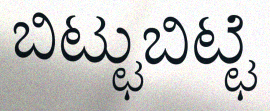
ಬಿಟ್ಟುಬಿಟ್ಟೆ